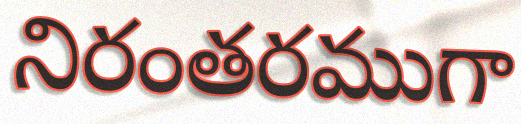
నిరంతరముగా